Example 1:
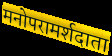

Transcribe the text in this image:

मनोपरामर्शदाता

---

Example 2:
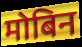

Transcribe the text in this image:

मोबिन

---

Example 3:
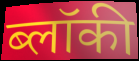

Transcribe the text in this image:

ब्लॉकी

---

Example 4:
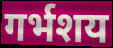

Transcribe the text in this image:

गर्भशय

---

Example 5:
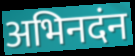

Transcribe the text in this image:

अभिनदंन